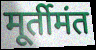
मूर्तीमंत